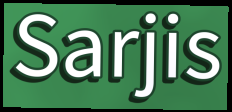
Sarjis